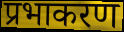
प्रभाकरण